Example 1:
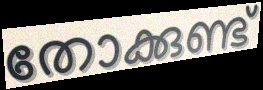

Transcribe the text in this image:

തോക്കുണ്ട്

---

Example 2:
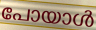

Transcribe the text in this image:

പോയാൾ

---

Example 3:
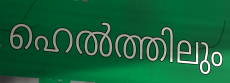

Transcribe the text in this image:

ഹെൽത്തിലും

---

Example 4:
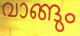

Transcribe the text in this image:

വാങ്ങും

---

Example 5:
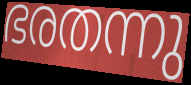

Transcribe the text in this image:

ഭരതന്നു